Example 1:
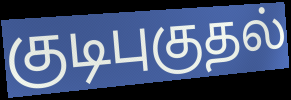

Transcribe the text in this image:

குடிபுகுதல்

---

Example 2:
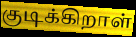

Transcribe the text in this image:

குடிக்கிறாள்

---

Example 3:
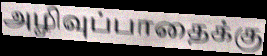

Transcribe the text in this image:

அழிவுப்பாதைக்கு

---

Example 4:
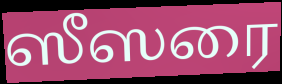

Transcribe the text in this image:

ஸீஸரை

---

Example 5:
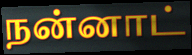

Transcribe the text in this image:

நன்னாட்